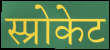
स्प्रोकेट